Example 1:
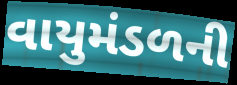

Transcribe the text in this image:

વાયુમંડળની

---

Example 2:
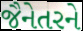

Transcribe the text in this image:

જૈનેતરને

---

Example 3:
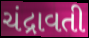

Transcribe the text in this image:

ચંદ્રાવતી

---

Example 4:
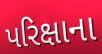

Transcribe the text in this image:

પરિક્ષાના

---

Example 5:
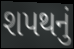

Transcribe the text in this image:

શપથનું